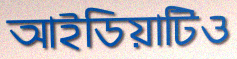
আইডিয়াটিও